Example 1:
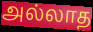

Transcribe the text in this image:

அல்லாத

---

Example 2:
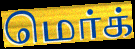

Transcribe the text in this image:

மெர்க்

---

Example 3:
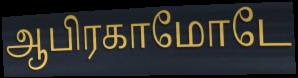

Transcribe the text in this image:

ஆபிரகாமோடே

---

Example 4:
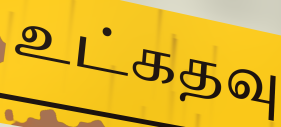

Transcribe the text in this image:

உட்கதவு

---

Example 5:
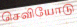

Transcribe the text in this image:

செவியோடு